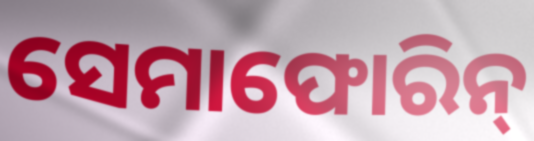
ସେମାଫୋରିନ୍